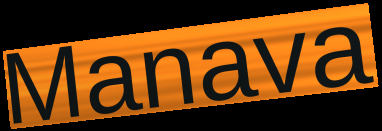
Manava